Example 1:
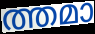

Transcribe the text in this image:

ത്തമാ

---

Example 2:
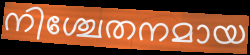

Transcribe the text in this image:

നിശ്ചേതനമായ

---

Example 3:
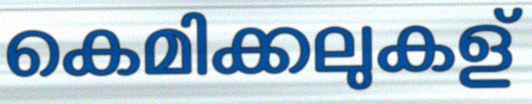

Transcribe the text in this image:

കെമിക്കലുകള്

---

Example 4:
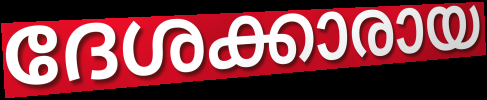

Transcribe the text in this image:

ദേശക്കാരായ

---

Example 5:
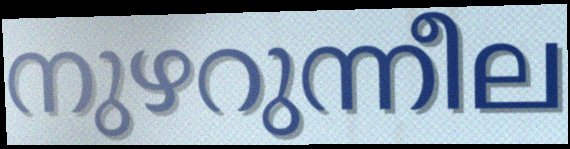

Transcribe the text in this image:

നുഴറുന്നീല